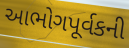
આભોગપૂર્વકની